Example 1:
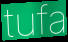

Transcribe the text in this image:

tufa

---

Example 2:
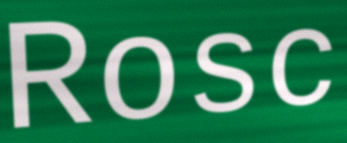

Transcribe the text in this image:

Rosc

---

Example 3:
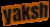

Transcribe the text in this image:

yaksh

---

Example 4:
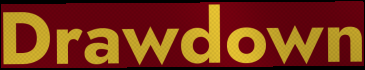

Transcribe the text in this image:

Drawdown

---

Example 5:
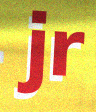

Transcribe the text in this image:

jr